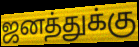
ஜனத்துக்கு